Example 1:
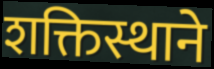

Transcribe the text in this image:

शक्तिस्थाने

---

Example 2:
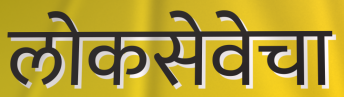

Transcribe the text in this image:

लोकसेवेचा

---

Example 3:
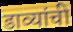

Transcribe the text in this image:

डाव्यांची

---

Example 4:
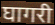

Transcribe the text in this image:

घागरी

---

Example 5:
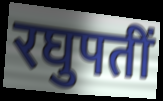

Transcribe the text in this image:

रघुपतीं